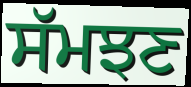
ਸੱਮਝਣ